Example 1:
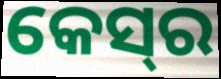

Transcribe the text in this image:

କେସ୍‌ର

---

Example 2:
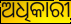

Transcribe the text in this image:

ଅଧିକାରୀ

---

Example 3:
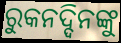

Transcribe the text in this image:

ରୁକନଦ୍ଦିନଙ୍କୁ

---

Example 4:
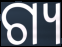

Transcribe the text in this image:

ଗ୍ୟ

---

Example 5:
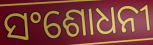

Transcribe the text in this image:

ସଂଶୋଧନୀ